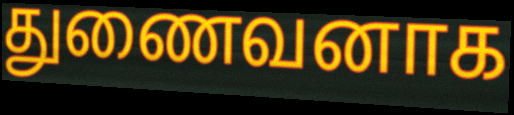
துணைவனாக